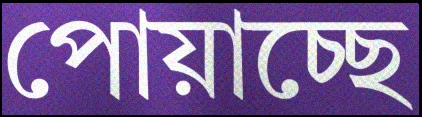
পোয়াচ্ছে